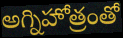
అగ్నిహోత్రంతో